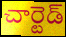
చార్టెడ్